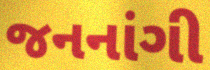
જનનાંગી